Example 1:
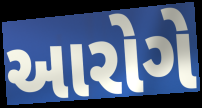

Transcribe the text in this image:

આરોગે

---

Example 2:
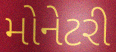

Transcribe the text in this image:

મોનેટરી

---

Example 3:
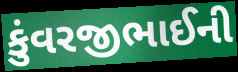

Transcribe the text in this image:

કુંવરજીભાઈની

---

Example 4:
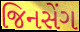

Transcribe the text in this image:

જિનસેંગ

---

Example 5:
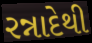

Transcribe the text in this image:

રન્નાદેથી